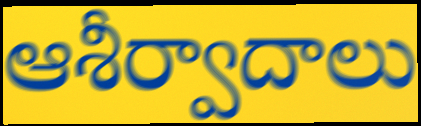
ఆశీర్వాదాలు